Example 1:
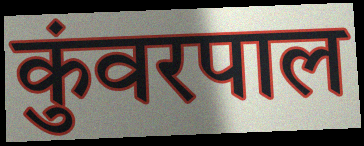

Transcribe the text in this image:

कुंवरपाल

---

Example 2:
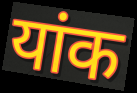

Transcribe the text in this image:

यांक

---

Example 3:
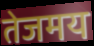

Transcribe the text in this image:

तेजमय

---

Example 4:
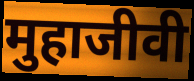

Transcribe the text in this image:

मुहाजीवी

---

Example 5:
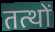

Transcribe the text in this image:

तत्थों